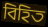
বিহিত